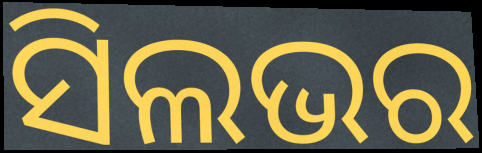
ସିଲଭର